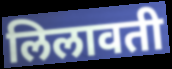
लिलावती